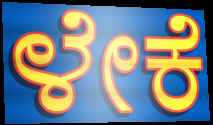
ಳೇಕೆ